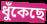
ধুঁকেছে